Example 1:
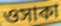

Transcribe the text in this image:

ওসাকা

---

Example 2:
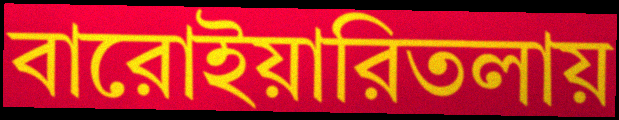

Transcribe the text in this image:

বারোইয়ারিতলায়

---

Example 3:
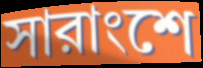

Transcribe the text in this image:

সারাংশে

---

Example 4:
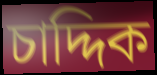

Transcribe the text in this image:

চাদ্দিক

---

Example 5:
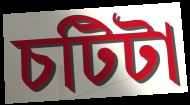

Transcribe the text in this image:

চটিটা